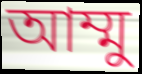
আম্মু